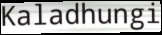
Kaladhungi